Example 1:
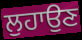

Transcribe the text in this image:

ਲੁਹਾਉਣ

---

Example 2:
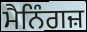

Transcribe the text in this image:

ਮੈਨਿੰਗਜ਼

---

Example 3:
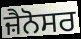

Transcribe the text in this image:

ਜ਼ੈਨੋਸਰ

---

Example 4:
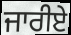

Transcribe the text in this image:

ਜਾਰੀਏ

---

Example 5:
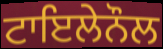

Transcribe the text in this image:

ਟਾਇਲੇਨੌਲ